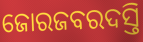
ଜୋରଜବରଦସ୍ତି